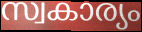
സ്വകാര്യം